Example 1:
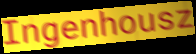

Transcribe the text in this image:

Ingenhousz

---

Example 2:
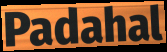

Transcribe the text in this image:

Padahal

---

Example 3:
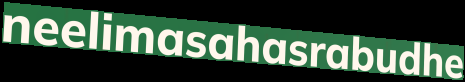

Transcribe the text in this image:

neelimasahasrabudhe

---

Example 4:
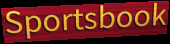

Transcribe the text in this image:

Sportsbook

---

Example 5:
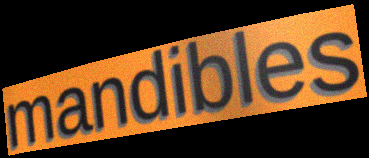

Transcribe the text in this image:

mandibles